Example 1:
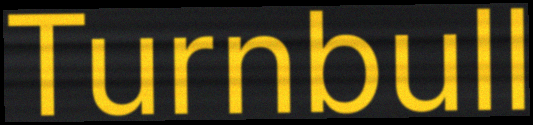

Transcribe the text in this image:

Turnbull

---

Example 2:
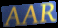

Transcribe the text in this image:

AAR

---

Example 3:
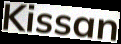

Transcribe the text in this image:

Kissan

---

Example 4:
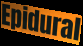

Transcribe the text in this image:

Epidural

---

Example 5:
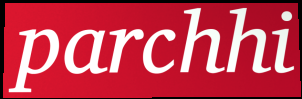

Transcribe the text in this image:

parchhi